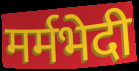
मर्मभेदी